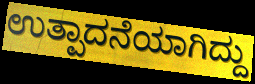
ಉತ್ಪಾದನೆಯಾಗಿದ್ದು